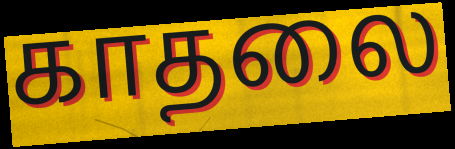
காதலை